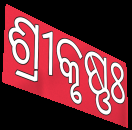
ଶ୍ରୀକୃଷ୍ଣଃ